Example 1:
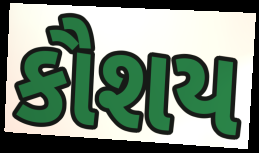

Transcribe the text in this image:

કૌશય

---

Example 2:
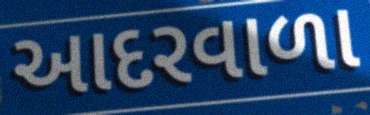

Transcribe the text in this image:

આદરવાળા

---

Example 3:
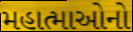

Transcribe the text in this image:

મહાત્માઓનો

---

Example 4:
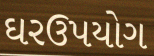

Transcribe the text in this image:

ઘરઉપયોગ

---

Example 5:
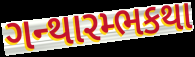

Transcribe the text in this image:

ગન્થારમ્ભકથા